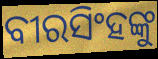
ବୀରସିଂହଙ୍କୁ